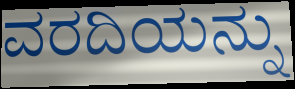
ವರದಿಯನ್ನು